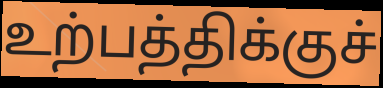
உற்பத்திக்குச்